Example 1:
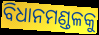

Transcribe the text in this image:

ବିଧାନମଣ୍ଡଳକୁ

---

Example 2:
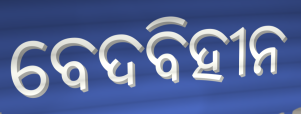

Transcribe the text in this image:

ବେଦବିହୀନ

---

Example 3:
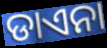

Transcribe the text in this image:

ଡାଏନା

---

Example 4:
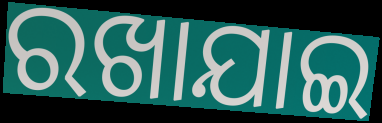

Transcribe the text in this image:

ରଖାଯାଇ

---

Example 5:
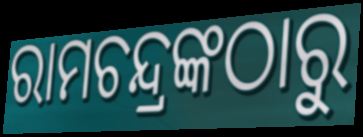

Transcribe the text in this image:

ରାମଚନ୍ଦ୍ରଙ୍କଠାରୁ